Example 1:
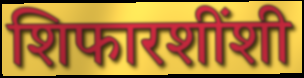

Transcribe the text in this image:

शिफारशींशी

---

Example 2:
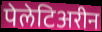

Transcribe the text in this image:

पेलेटिअरीन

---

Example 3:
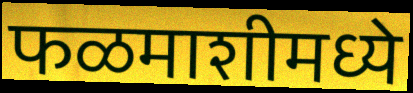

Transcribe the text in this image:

फळमाशीमध्ये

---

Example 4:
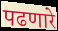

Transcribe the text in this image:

पढणारे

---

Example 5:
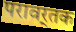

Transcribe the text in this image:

परावर्तक